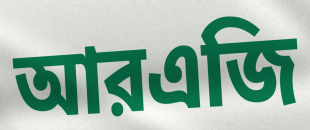
আরএজি